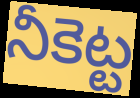
నీకెట్ట